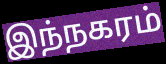
இந்நகரம்